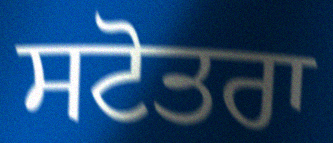
ਸਟੋਤਰਾ